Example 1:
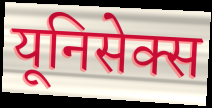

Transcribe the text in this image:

यूनिसेक्स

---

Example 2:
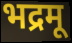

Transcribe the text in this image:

भद्रमू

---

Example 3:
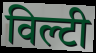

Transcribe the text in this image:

विल्टी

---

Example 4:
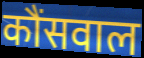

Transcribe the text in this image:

कौंसवाल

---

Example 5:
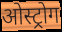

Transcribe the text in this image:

ओस्ट्रोग